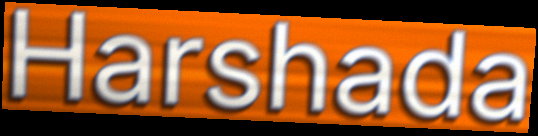
Harshada